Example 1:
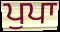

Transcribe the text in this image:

ਪੁਪਾ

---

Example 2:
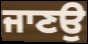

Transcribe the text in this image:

ਜਾਣਉ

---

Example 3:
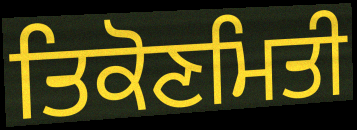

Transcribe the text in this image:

ਤਿਕੋਣਮਿਤੀ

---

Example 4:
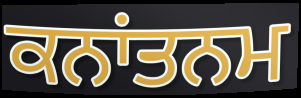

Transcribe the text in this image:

ਕਨਾਂਤਨਮ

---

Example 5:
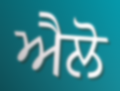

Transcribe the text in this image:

ਐਲੋ